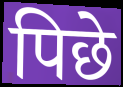
पिछे